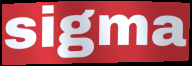
sigma